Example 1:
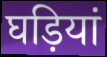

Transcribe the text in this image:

घड़ियां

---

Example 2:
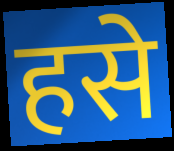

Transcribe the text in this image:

हसे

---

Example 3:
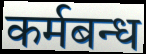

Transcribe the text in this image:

कर्मबन्ध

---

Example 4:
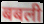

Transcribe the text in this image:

बबली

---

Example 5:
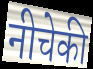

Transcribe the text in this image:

नीचेकी